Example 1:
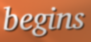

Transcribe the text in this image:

begins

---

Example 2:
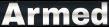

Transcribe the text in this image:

Armed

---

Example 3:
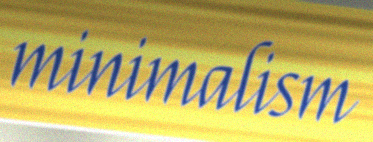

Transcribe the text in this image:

minimalism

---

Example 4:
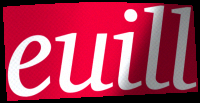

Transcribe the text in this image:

euill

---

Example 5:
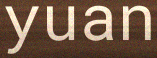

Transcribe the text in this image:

yuan